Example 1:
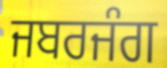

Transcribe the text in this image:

ਜਬਰਜੰਗ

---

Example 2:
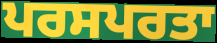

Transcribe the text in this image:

ਪਰਸਪਰਤਾ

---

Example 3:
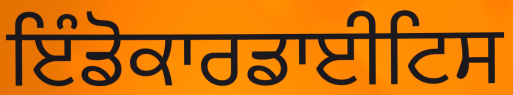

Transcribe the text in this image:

ਇੰਡੋਕਾਰਡਾਈਟਿਸ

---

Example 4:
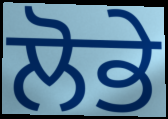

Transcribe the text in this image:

ਲੋਭੇ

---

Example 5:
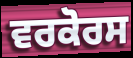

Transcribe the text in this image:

ਵਰਕੋਰਸ